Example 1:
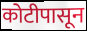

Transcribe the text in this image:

कोटीपासून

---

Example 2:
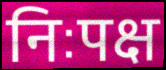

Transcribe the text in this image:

निःपक्ष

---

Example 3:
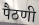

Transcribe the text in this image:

पैठणी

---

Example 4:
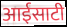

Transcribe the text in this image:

आईसाटी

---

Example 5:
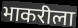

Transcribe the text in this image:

भाकरीला